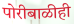
पोरीबाळीही